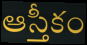
ఆస్తీకం